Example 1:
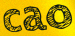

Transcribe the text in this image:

cao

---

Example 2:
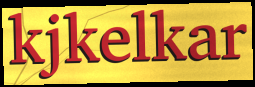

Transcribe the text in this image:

kjkelkar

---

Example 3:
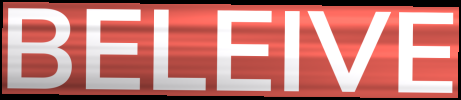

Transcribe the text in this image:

BELEIVE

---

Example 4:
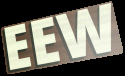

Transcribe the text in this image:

EEW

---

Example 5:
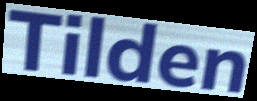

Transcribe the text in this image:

Tilden